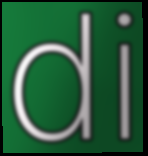
di